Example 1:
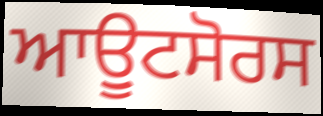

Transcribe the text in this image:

ਆਉੂਟਸੋਰਸ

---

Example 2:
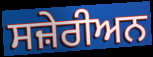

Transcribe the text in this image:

ਸਜ਼ੇਰੀਅਨ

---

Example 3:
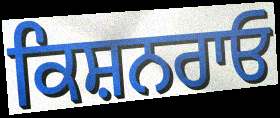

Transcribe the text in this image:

ਕਿਸ਼ਨਰਾਓ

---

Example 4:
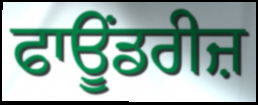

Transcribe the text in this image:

ਫਾਊਂਡਰੀਜ਼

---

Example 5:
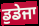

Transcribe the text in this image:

ਡੁਡੇਜਾ